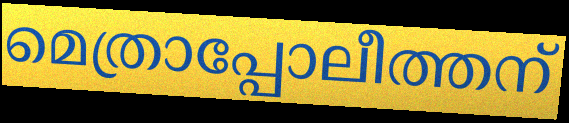
മെത്രാപ്പോലീത്തന്